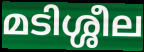
മടിശ്ശീല